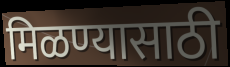
मिळण्‍यासाठी